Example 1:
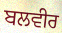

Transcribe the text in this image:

ਬਲਵੀਰ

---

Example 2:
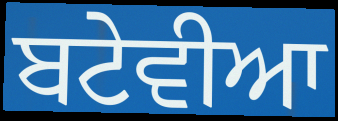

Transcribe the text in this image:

ਬਟੇਵੀਆ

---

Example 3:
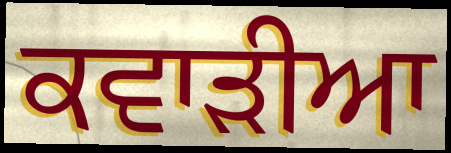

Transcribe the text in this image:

ਕਵਾੜੀਆ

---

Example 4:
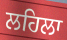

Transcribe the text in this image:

ਲਹਿਲਾ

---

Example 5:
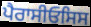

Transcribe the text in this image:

ਪੈਰਾਸੀਓਸਿਸ